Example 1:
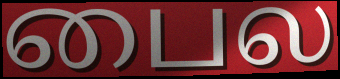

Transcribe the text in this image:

பைல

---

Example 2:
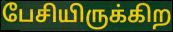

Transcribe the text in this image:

பேசியிருக்கிற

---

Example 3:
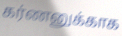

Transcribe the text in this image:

கர்ணனுக்காக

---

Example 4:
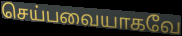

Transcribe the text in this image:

செய்பவையாகவே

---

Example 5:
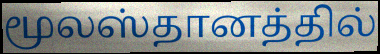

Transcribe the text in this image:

மூலஸ்தானத்தில்